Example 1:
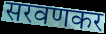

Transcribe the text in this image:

सरवणकर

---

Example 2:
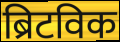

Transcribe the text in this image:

ब्रिटविक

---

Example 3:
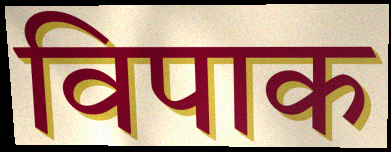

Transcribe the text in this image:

विपाक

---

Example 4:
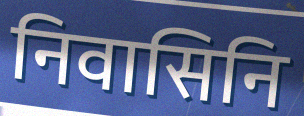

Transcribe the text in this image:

निवासिनि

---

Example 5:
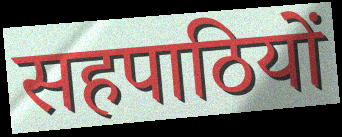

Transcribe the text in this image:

सहपाठियों